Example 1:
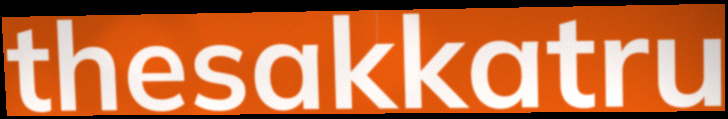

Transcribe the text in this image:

thesakkatru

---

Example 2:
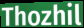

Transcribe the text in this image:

Thozhil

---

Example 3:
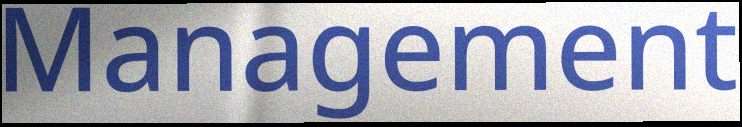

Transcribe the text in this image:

Management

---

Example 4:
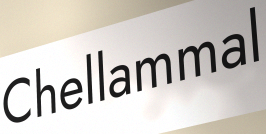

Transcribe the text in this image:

Chellammal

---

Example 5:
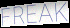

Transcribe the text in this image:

FREAK